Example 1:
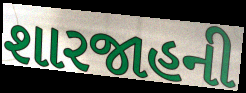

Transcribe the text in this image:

શારજાહની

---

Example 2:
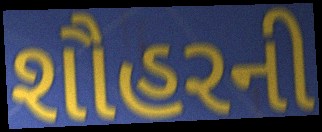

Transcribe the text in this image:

શૌહરની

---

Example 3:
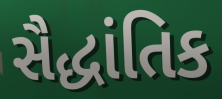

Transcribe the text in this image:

સૈદ્ધાંતિક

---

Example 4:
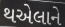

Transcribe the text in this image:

થએલાને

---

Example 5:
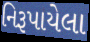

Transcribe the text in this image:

નિરૂપાયેલા